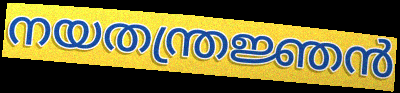
നയതന്ത്രജ്ഞൻ